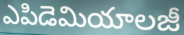
ఎపిడెమియాలజీ